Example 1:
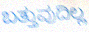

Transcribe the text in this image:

ಬತ್ತುವುದಿಲ್ಲ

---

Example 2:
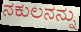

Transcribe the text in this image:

ನಕುಲನನ್ನು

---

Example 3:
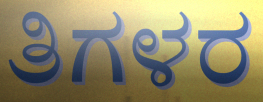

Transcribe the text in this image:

ತಿಗಳರ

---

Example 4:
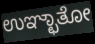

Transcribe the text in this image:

ಉಞ್ಛಾತೋ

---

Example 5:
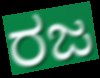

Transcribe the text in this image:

ರಜ